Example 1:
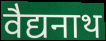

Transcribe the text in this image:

वैद्यनाथ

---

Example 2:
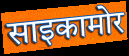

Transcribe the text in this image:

साइकामोर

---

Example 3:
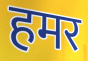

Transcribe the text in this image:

हमर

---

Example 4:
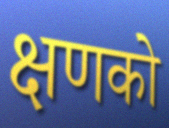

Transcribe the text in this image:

क्षणको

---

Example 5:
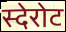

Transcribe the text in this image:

स्देरोट